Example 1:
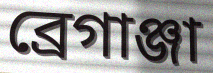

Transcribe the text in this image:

ব্রেগাঞ্জা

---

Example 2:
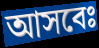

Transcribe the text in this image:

আসবেঃ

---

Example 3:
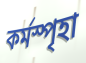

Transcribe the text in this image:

কর্মস্পৃহা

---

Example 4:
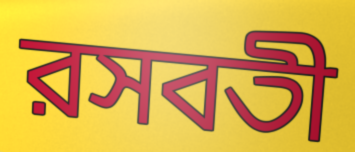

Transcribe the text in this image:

রসবতী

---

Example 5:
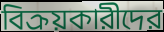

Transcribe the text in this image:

বিক্রয়কারীদের